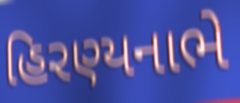
હિરણ્યનાભે